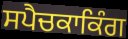
ਸਪੈਚਕਾਕਿੰਗ